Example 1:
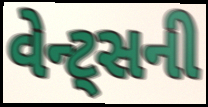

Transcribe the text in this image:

વેન્ટ્સની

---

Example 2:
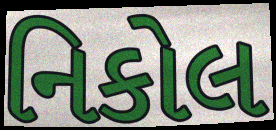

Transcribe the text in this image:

નિકોલ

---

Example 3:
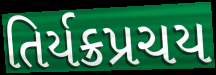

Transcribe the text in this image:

તિર્યક્રપ્રચય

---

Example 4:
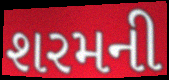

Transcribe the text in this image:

શરમની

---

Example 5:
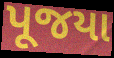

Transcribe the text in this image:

પૂજયા